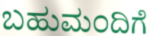
ಬಹುಮಂದಿಗೆ